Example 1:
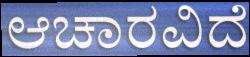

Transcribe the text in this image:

ಆಚಾರವಿದೆ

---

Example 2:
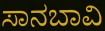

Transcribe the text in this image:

ಸಾನಬಾವಿ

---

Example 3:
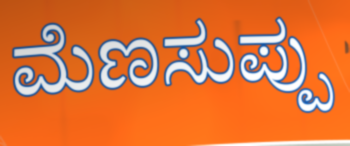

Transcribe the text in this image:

ಮೆಣಸುಪ್ಪು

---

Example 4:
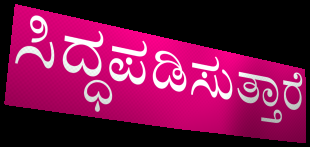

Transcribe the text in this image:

ಸಿದ್ಧಪಡಿಸುತ್ತಾರೆ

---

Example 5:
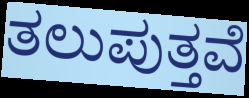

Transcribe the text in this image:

ತಲುಪುತ್ತವೆ